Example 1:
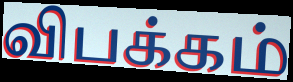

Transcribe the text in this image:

விபக்கம்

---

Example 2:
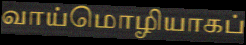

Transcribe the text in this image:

வாய்மொழியாகப்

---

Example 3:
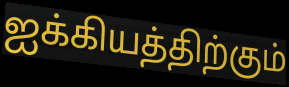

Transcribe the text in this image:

ஐக்கியத்திற்கும்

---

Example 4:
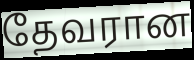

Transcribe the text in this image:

தேவரான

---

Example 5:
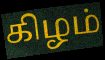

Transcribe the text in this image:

கிழம்